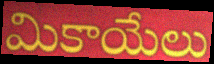
మికాయేలు